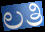
ಲತಿ